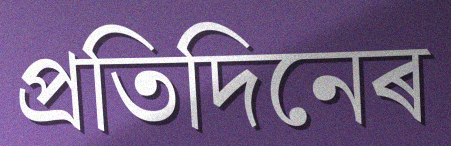
প্ৰতিদিনেৰ